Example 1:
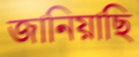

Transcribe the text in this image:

জানিয়াছি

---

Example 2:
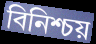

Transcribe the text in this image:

বিনিশ্চয়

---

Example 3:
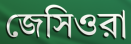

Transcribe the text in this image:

জেসিওরা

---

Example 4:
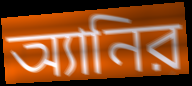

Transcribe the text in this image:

অ্যানির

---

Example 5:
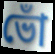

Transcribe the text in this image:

ভোঁ